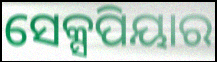
ସେକ୍ସପିୟାର